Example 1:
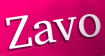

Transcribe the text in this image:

Zavo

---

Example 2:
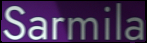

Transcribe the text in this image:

Sarmila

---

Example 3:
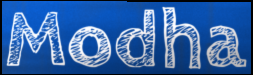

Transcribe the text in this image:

Modha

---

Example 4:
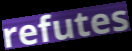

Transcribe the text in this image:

refutes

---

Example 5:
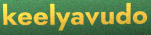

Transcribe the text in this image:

keelyavudo